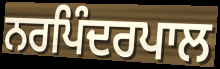
ਨਰਪਿੰਦਰਪਾਲ